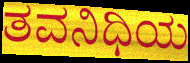
ತವನಿಧಿಯ